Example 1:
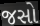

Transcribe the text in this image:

જસો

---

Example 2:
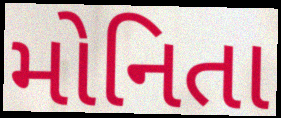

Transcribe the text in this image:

મોનિતા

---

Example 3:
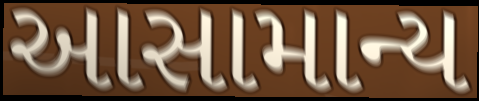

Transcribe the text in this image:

આસામાન્ય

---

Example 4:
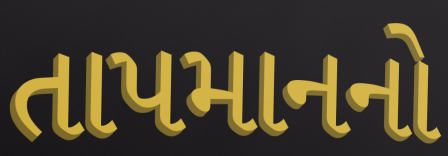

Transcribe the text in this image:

તાપમાનનો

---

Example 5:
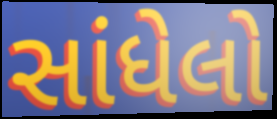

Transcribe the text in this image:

સાંધેલો